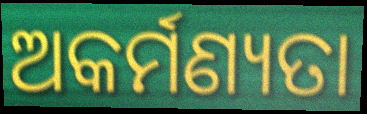
ଅକର୍ମଣ୍ୟତା